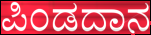
ಪಿಂಡದಾನ